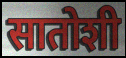
सातोशी